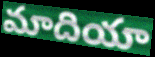
మాదియా